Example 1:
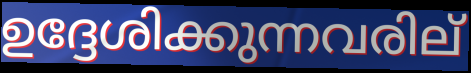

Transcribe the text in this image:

ഉദ്ദേശിക്കുന്നവരില്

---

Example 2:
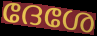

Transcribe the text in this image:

ദേശേ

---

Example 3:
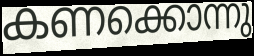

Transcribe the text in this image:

കണക്കൊന്നു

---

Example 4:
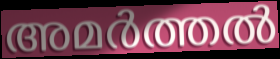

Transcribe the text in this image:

അമർത്തൽ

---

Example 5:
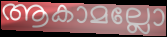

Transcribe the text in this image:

ആകാമല്ലോ